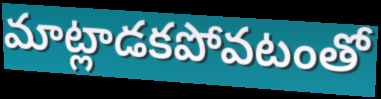
మాట్లాడకపోవటంతో